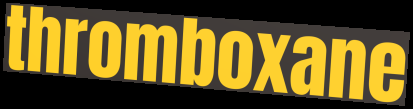
thromboxane